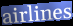
airlines